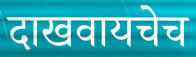
दाखवायचेच